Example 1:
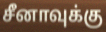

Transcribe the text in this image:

சீனாவுக்கு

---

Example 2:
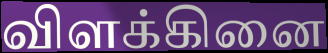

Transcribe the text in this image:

விளக்கினை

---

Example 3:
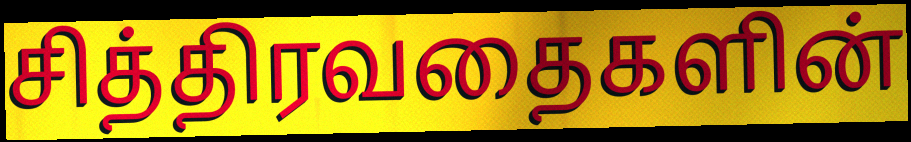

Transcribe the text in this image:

சித்திரவதைகளின்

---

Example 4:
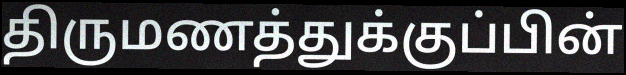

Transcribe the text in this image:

திருமணத்துக்குப்பின்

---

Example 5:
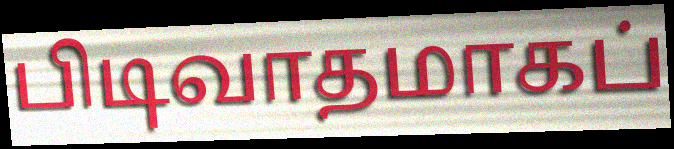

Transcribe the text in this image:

பிடிவாதமாகப்